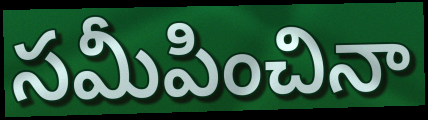
సమీపించినా